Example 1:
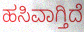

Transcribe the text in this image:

ಹಸಿವಾಗ್ತಿದೆ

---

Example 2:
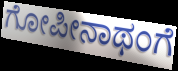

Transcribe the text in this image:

ಗೋಪೀನಾಥಂಗೆ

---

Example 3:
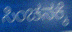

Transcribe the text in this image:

ಸಿಂಚನಕ್ಕೆ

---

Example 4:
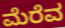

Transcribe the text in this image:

ಮೆರೆವ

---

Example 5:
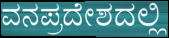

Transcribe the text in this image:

ವನಪ್ರದೇಶದಲ್ಲಿ